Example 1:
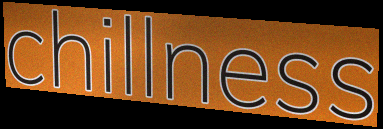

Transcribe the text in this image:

chillness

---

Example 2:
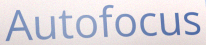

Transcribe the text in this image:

Autofocus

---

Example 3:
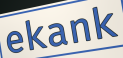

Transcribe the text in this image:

ekank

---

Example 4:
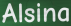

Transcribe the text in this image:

Alsina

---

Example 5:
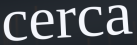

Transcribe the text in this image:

cerca